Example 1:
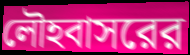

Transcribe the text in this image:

লৌহবাসরের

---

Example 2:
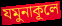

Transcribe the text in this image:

যমুনাকূলে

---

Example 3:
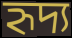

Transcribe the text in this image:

হৃদ্য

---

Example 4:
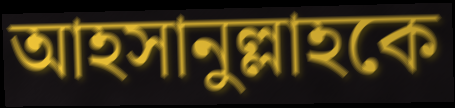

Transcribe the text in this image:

আহসানুল্লাহকে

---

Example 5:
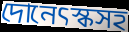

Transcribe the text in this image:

দোনেৎস্কসহ